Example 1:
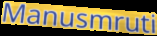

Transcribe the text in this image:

Manusmruti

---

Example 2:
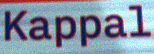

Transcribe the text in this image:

Kappal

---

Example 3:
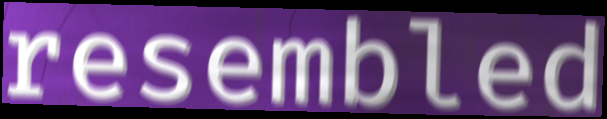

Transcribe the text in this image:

resembled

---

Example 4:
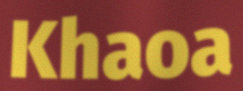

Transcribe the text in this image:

Khaoa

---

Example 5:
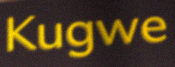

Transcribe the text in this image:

Kugwe